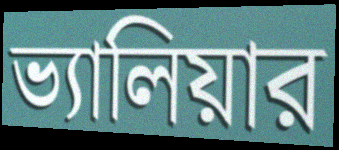
ভ্যালিয়ার